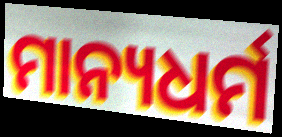
ମାନ୍ୟଧର୍ମ